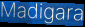
Madigara